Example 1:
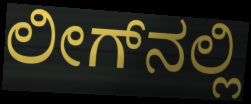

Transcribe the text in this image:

ಲೀಗ್‌ನಲ್ಲಿ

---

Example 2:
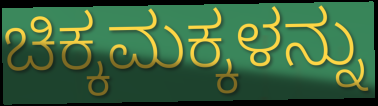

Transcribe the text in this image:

ಚಿಕ್ಕಮಕ್ಕಳನ್ನು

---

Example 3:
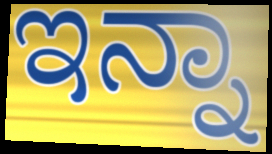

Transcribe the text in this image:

ಇನ್ನಾ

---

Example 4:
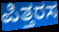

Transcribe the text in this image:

ಪಿತ್ತರಸ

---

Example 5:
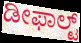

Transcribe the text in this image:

ಡೀಫಾಲ್ಟ್